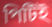
পিটিই